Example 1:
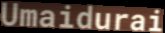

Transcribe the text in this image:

Umaidurai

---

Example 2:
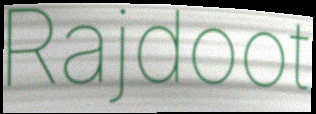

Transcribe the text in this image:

Rajdoot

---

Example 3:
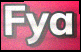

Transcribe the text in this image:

Fya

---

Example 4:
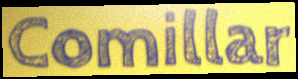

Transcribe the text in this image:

Comillar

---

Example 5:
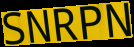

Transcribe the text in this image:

SNRPN